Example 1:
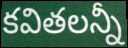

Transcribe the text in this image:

కవితలన్నీ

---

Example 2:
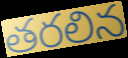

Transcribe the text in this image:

తరలిన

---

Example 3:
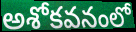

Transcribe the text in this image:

అశోకవనంలో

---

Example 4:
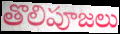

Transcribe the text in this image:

తొలిపూజలు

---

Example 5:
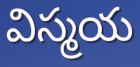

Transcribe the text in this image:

విస్మయ